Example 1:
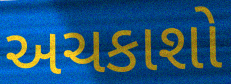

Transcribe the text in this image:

અચકાશો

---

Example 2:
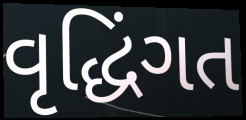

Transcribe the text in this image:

વૃદ્ધિંગત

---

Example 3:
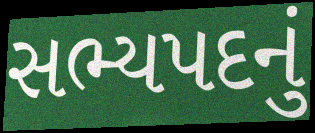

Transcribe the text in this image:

સભ્યપદનું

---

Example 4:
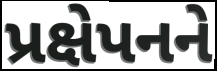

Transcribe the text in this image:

પ્રક્ષેપનને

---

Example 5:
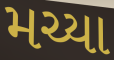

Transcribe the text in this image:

મચ્યા